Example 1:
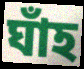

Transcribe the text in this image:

ঘাঁহ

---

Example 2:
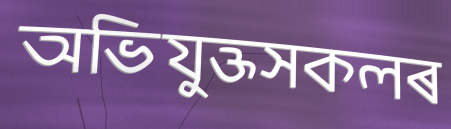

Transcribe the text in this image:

অভিযুক্তসকলৰ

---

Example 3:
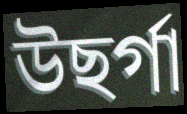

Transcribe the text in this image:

উছৰ্গা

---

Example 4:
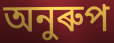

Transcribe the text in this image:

অনুৰুপ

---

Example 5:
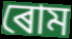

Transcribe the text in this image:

ৰোম